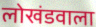
लोखंडवाला